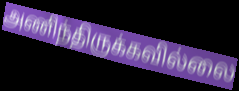
அணிந்திருக்கவில்லை